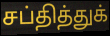
சப்தித்துக்